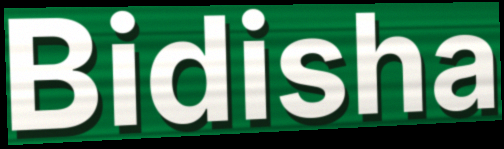
Bidisha